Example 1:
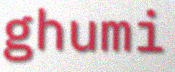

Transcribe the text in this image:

ghumi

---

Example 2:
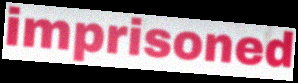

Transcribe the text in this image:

imprisoned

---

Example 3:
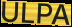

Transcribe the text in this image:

ULPA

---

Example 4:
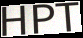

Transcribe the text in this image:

HPT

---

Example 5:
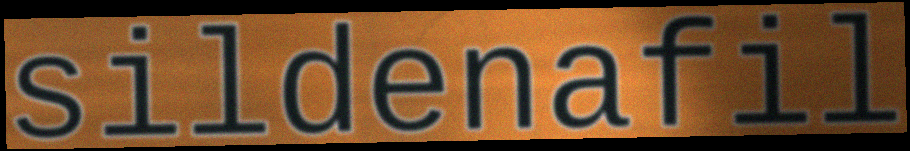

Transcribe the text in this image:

sildenafil